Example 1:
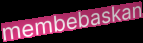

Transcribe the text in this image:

membebaskan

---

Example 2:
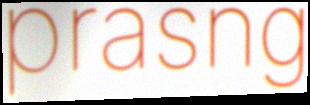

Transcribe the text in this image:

prasng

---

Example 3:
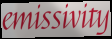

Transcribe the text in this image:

emissivity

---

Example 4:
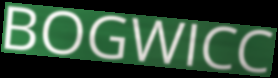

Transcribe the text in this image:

BOGWICC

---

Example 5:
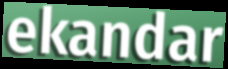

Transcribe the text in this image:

ekandar